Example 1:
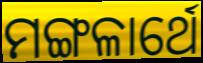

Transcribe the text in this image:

ମଙ୍ଗଳାର୍ଥେ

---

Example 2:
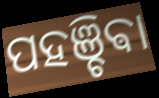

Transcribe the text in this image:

ପହଞ୍ଚିଵା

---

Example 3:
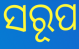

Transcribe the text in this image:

ସରୂପ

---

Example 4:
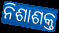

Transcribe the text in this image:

ନିଶାଶକ୍ତ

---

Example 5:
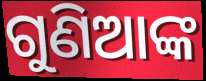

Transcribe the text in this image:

ଗୁଣିଆଙ୍କ